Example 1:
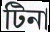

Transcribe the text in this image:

টিনা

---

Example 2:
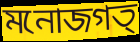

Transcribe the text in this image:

মনোজগত্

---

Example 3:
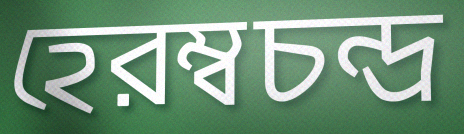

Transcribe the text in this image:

হেরম্বচন্দ্র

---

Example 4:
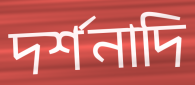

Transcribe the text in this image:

দর্শনাদি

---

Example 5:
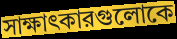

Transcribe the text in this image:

সাক্ষাৎকারগুলোকে